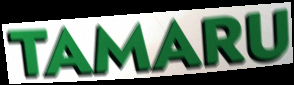
TAMARU